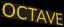
OCTAVE